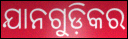
ଯାନଗୁଡ଼ିକର